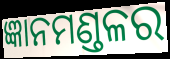
ଜ୍ଞାନମଣ୍ଡଳର